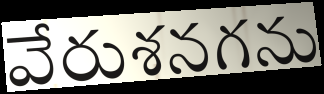
వేరుశనగను